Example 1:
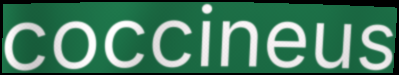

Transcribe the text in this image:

coccineus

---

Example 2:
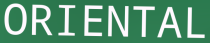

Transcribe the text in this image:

ORIENTAL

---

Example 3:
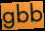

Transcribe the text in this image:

gbb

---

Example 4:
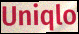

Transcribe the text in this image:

Uniqlo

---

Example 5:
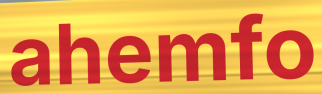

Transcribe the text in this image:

ahemfo